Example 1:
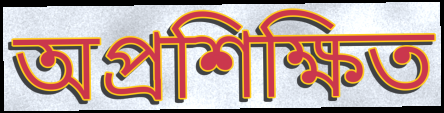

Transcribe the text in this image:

অপ্রশিক্ষিত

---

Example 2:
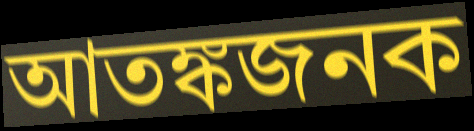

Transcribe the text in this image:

আতঙ্কজনক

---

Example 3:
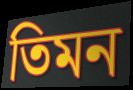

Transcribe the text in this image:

তিমন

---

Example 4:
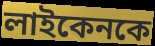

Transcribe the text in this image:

লাইকেনকে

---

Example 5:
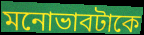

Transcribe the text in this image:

মনোভাবটাকে